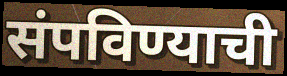
संपविण्याची